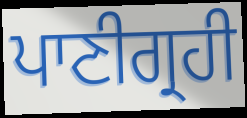
ਪਾਣੀਗ੍ਰਹੀ